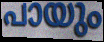
പായും